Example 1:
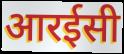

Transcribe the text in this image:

आरईसी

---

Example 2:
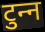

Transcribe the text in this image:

टुन्न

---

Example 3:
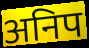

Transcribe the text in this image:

अनिप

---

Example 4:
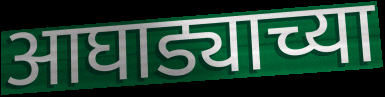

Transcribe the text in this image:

आघाड्याच्या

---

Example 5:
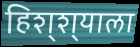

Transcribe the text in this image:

हिश्श्याला